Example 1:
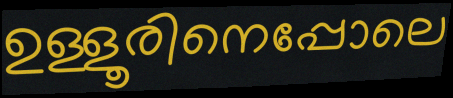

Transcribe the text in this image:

ഉള്ളൂരിനെപ്പോലെ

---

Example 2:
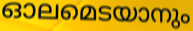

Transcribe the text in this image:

ഓലമെടയാനും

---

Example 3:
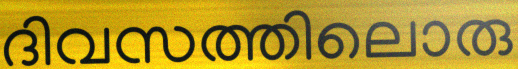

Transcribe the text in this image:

ദിവസത്തിലൊരു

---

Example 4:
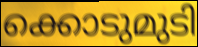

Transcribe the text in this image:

ക്കൊടുമുടി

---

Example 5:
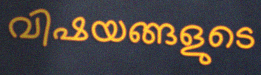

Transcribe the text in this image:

വിഷയങ്ങളുടെ